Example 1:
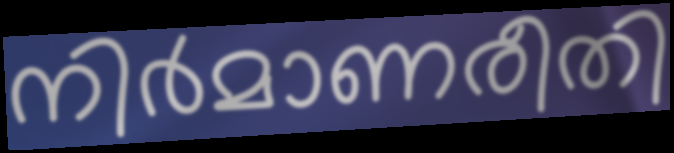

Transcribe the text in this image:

നിർമാണരീതി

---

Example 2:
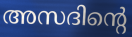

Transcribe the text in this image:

അസദിന്റെ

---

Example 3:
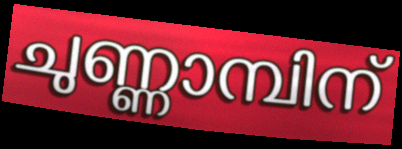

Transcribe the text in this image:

ചുണ്ണാമ്പിന്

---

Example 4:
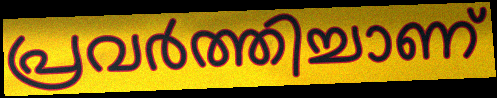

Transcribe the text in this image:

പ്രവർത്തിച്ചാണ്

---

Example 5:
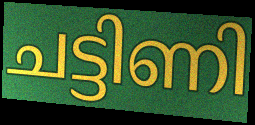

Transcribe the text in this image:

ചട്ടിണി